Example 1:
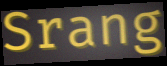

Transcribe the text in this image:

Srang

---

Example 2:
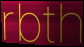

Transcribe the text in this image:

rbth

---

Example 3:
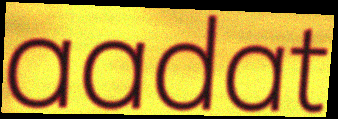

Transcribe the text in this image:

aadat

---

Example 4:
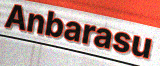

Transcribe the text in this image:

Anbarasu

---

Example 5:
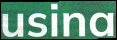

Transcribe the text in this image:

usina